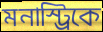
মনাস্ট্রিকে